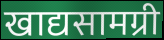
खाद्यसामग्री